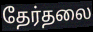
தேர்தலை